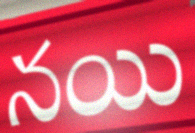
నయి